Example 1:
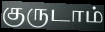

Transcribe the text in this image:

குருடாம்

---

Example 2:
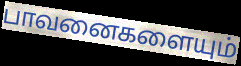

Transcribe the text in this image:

பாவனைகளையும்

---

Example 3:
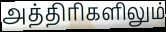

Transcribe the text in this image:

அத்திரிகளிலும்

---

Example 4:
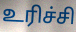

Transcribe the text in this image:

உரிச்சி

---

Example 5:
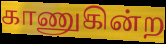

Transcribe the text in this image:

காணுகின்ற